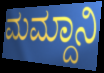
ಮಮ್ದಾನಿ